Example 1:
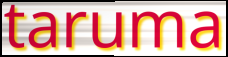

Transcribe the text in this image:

taruma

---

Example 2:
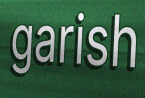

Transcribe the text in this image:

garish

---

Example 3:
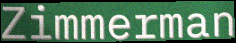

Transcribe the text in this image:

Zimmerman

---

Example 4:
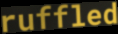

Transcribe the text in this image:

ruffled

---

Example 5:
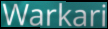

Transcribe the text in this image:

Warkari